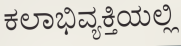
ಕಲಾಭಿವ್ಯಕ್ತಿಯಲ್ಲಿ